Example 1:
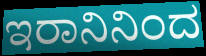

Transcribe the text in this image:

ಇರಾನಿನಿಂದ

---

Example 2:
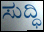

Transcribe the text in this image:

ಸುದ್ಧಿ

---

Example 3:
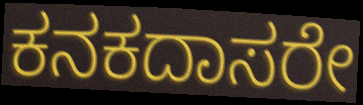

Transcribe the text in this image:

ಕನಕದಾಸರೇ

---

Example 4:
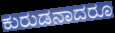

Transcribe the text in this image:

ಕುರುಡನಾದರೂ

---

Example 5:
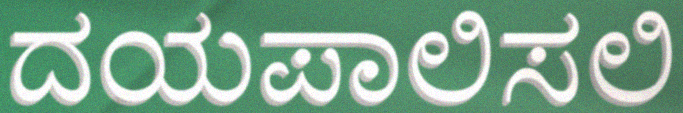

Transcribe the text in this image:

ದಯಪಾಲಿಸಲಿ